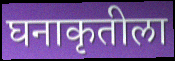
घनाकृतीला